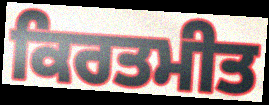
ਕਿਰਤਮੀਤ